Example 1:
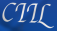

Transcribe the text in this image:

CIIL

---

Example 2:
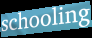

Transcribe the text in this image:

schooling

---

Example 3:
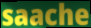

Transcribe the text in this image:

saache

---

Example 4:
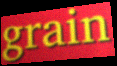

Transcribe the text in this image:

grain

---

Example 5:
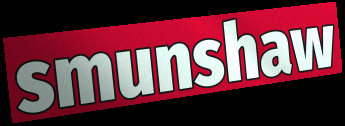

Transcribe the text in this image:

smunshaw